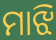
ମାଝି